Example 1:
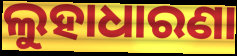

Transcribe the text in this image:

ଲୁହାଧାରଣା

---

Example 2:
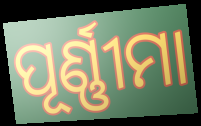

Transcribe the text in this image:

ପୂର୍ଣ୍ଣୀମା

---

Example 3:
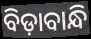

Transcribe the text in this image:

ବିଡ଼ାବାନ୍ଧି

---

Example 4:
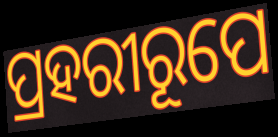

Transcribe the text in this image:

ପ୍ରହରୀରୂପେ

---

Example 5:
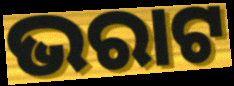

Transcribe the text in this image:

ଭରାଟ